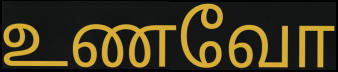
உணவோ